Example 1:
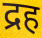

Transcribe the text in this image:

द्रह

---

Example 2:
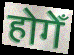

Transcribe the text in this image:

होगेँ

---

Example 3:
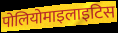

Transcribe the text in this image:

पोलियोमाइलाइटिस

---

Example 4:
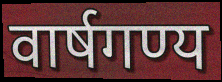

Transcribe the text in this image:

वार्षगण्य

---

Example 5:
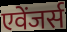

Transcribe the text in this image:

एवेंजर्स